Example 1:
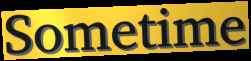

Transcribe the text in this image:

Sometime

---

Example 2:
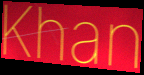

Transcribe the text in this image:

Khan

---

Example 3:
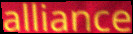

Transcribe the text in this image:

alliance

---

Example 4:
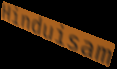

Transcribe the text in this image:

Hinduisam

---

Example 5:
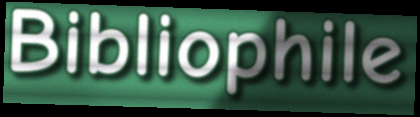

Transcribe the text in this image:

Bibliophile